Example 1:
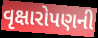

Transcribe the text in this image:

વૃક્ષારોપણની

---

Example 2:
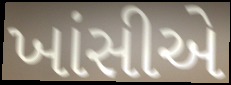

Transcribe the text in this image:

ખાંસીએ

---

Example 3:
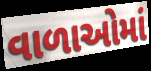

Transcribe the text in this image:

વાળાઓમાં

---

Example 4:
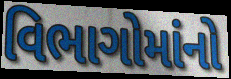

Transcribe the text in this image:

વિભાગોમાંનો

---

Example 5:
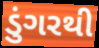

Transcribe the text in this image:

ડુંગરથી